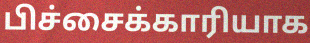
பிச்சைக்காரியாக